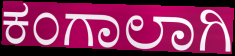
ಕಂಗಾಲಾಗಿ